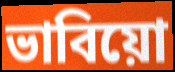
ভাবিয়ো